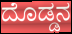
ದೊಡ್ಡನ